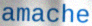
amache